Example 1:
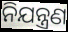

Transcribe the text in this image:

ନିଯନ୍ତ୍ରଣ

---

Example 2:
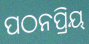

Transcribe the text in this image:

ପଠନପ୍ରିୟ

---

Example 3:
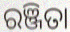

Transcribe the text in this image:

ରଞ୍ଜିତା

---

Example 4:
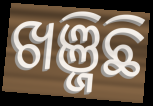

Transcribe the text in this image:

ଖଞ୍ଜିଛି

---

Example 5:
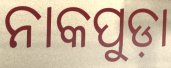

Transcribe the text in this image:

ନାକପୁଡ଼ା